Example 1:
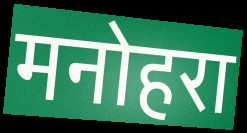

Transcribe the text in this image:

मनोहरा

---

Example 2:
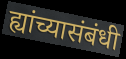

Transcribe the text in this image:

ह्यांच्यासंबंधी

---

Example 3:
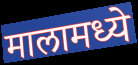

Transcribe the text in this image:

मालामध्ये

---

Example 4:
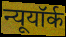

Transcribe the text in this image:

न्यूयॉर्क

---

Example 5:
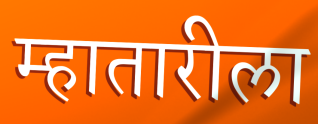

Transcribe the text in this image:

म्हातारीला